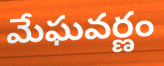
మేఘవర్ణం